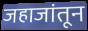
जहाजांतून